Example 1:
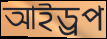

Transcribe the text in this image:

আইড্রপ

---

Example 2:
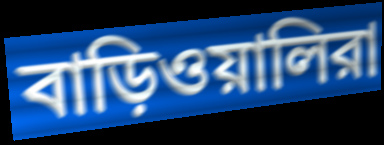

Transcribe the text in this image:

বাড়িওয়ালিরা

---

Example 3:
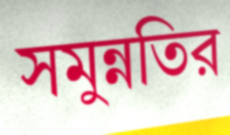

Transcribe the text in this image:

সমুন্নতির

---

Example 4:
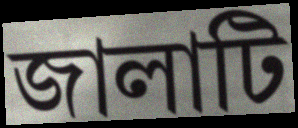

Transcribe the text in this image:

জালাটি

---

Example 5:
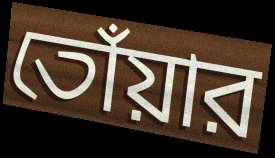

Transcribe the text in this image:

তোঁয়ার